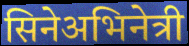
सिनेअभिनेत्री